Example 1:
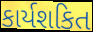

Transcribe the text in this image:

કાર્યશકિત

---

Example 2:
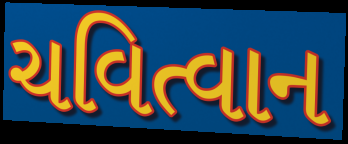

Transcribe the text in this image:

ચવિત્વાન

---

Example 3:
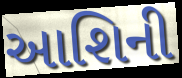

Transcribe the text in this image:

આશિની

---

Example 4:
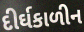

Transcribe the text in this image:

દીર્ઘકાળીન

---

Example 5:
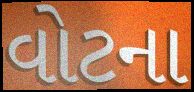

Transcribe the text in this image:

વોટના